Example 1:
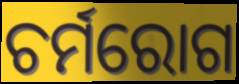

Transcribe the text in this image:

ଚର୍ମରୋଗ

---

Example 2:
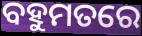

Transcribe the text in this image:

ବହୁମତରେ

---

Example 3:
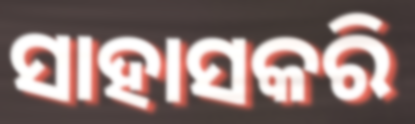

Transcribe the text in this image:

ସାହାସକରି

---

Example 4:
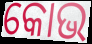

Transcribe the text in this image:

କୋଭ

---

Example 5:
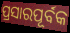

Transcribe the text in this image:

ପ୍ରସାରପୂର୍ବକ